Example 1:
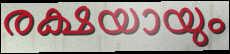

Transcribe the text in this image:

രക്ഷയായും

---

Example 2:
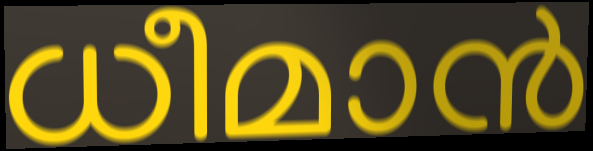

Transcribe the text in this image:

ധീമാൻ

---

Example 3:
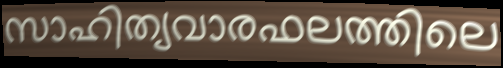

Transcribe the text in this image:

സാഹിത്യവാരഫലത്തിലെ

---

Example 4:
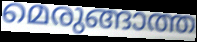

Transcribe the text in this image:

മെരുങ്ങാത്ത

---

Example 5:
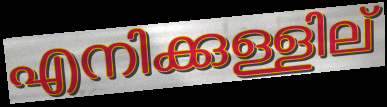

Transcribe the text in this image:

എനിക്കുള്ളില്